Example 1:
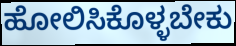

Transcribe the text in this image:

ಹೋಲಿಸಿಕೊಳ್ಳಬೇಕು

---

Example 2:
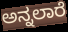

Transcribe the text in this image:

ಅನ್ನಲಾರೆ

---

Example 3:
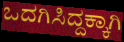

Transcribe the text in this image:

ಒದಗಿಸಿದ್ದಕ್ಕಾಗಿ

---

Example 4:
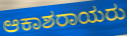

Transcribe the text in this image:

ಆಕಾಶರಾಯರು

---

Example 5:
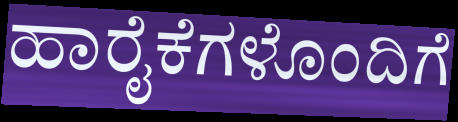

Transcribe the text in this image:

ಹಾರೈಕೆಗಳೊಂದಿಗೆ